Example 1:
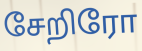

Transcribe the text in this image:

சேறிரோ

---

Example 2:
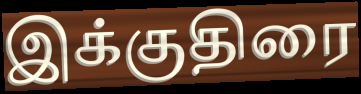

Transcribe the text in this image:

இக்குதிரை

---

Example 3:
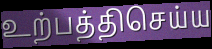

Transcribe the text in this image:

உற்பத்திசெய்ய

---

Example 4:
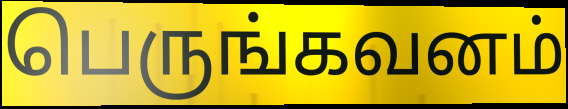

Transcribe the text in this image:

பெருங்கவனம்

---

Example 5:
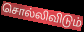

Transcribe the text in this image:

சொல்லிவிடும்